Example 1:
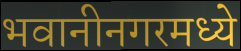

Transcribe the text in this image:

भवानीनगरमध्ये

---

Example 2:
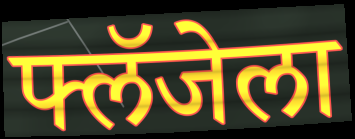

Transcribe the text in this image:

फ्लॅजेला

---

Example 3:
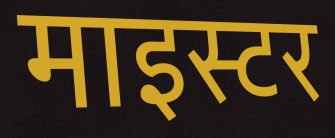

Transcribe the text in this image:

माइस्टर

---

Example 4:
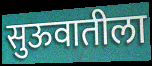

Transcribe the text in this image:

सुऊवातीला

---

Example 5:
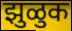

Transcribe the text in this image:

झुळुक